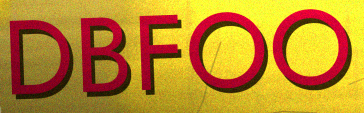
DBFOO